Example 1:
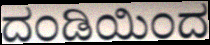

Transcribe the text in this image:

ದಂಡಿಯಿಂದ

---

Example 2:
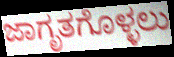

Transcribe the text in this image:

ಜಾಗೃತಗೊಳ್ಳಲು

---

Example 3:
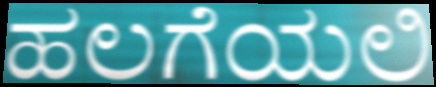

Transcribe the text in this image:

ಹಲಗೆಯಲಿ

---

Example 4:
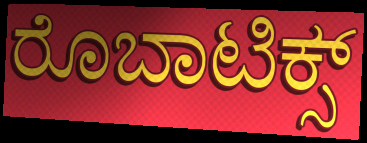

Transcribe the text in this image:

ರೊಬಾಟಿಕ್ಸ್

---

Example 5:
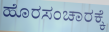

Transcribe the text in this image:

ಹೊರಸಂಚಾರಕ್ಕೆ